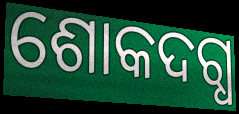
ଶୋକଦଗ୍ଧ